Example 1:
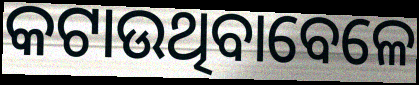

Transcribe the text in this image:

କଟାଉଥିବାବେଳେ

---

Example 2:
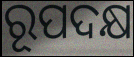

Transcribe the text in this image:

ରୂପଦକ୍ଷ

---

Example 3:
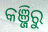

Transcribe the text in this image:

କଞ୍ଜିରୁ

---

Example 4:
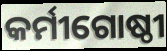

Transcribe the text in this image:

କର୍ମୀଗୋଷ୍ଠୀ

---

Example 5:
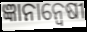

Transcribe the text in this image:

ଜ୍ଞାନାନ୍ୱେଷୀ